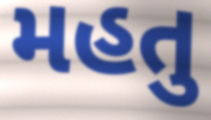
મહતુ